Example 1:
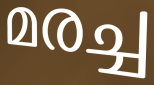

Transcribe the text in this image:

മരച്ച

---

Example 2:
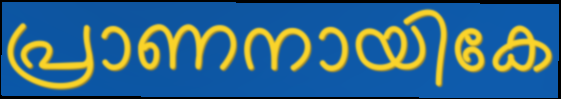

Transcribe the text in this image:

പ്രാണനായികേ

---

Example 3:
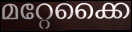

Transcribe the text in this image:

മറ്റേക്കൈ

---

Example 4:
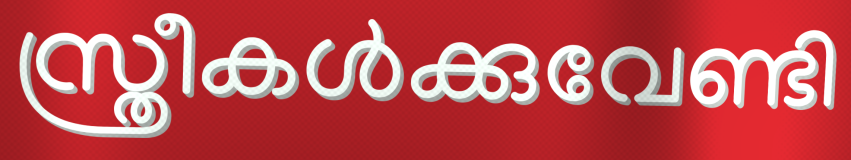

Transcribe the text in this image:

സ്ത്രീകൾക്കുവേണ്ടി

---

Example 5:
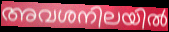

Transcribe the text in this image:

അവശനിലയിൽ